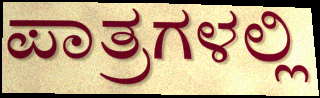
ಪಾತ್ರಗಳಲ್ಲಿ